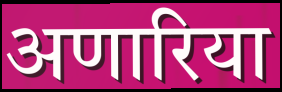
अणारिया